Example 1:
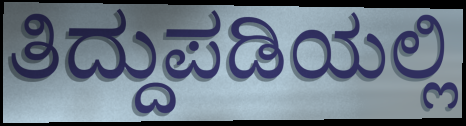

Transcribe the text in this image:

ತಿದ್ದುಪಡಿಯಲ್ಲಿ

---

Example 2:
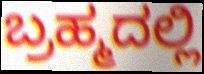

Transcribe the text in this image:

ಬ್ರಹ್ಮದಲ್ಲಿ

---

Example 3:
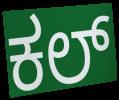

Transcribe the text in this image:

ಕಲ್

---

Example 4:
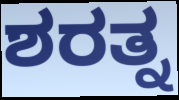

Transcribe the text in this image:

ಶರತ್ನ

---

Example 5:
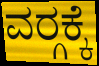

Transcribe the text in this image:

ವರ‍್ಗಕ್ಕೆ